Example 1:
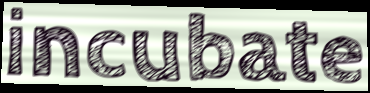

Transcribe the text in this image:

incubate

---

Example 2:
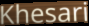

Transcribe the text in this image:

Khesari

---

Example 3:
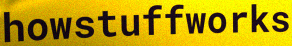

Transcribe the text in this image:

howstuffworks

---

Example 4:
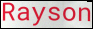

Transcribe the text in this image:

Rayson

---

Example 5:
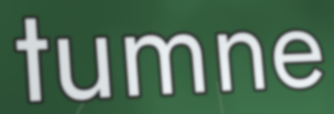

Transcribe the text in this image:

tumne